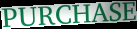
PURCHASE